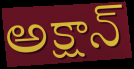
అక్షాన్